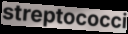
streptococci